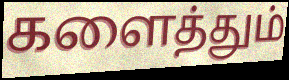
களைத்தும்